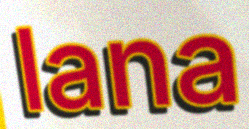
lana